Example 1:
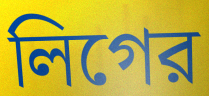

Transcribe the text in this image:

লিগের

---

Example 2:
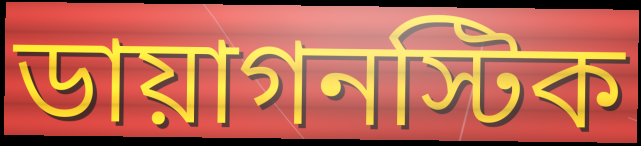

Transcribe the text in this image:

ডায়াগনস্টিক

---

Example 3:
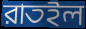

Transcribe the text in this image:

রাতইল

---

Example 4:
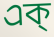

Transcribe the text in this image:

এক্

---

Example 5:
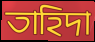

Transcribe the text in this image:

তাহিদা